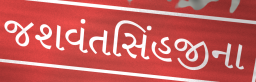
જશવંતસિંહજીના